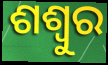
ଶଶ୍ୱୁର